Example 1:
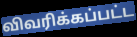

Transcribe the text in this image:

விவரிக்கப்பட்ட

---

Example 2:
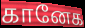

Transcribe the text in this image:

கானேக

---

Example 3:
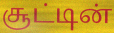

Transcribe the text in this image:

சூட்டின்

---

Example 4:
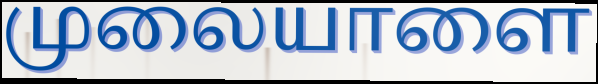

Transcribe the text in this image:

முலையாளை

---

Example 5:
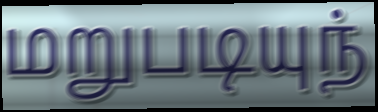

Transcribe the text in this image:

மறுபடியுந்